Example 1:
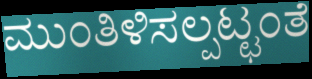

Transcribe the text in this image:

ಮುಂತಿಳಿಸಲ್ಪಟ್ಟಂತೆ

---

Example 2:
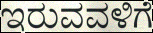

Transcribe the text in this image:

ಇರುವವಳಿಗೆ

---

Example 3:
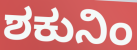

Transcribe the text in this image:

ಶಕುನಿಂ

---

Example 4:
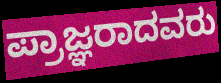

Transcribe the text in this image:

ಪ್ರಾಜ್ಞರಾದವರು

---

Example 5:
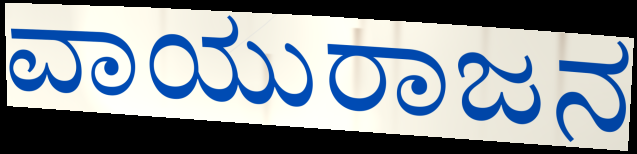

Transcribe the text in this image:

ವಾಯುರಾಜನ